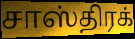
சாஸ்திரக்